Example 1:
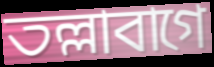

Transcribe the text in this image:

তল্লাবাগে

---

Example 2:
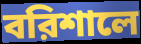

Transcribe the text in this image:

বরিশালে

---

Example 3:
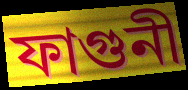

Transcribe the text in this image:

ফাগুনী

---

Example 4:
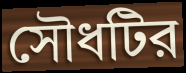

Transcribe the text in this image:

সৌধটির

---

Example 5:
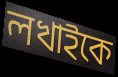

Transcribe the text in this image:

লখাইকে